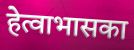
हेत्वाभासका